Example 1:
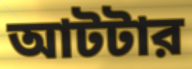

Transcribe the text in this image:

আটটার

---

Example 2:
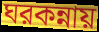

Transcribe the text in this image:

ঘরকন্নায়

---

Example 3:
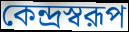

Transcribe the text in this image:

কেন্দ্রস্বরূপ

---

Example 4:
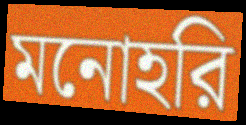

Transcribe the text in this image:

মনোহরি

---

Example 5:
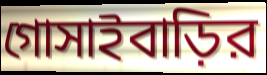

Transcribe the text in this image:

গোসাইবাড়ির